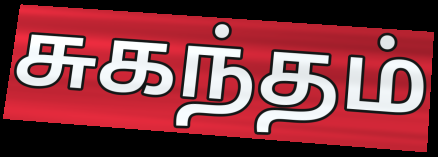
சுகந்தம்